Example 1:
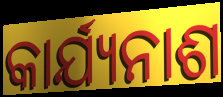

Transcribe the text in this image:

କାର୍ଯ୍ୟନାଶ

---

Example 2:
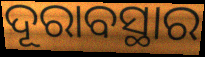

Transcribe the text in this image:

ଦୂରାବସ୍ଥାର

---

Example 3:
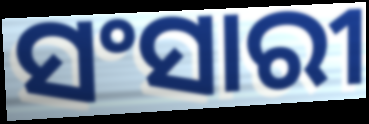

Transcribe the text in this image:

ସଂସାରୀ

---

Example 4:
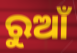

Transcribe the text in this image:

ରୁଆଁ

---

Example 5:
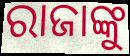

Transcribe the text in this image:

ରାଜାଙ୍କୁ